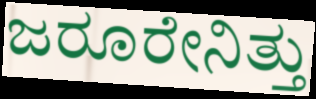
ಜರೂರೇನಿತ್ತು